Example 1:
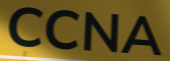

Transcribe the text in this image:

CCNA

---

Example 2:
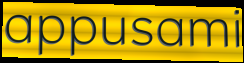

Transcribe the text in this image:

appusami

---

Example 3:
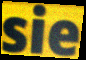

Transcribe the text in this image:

sie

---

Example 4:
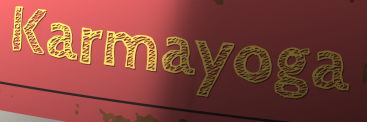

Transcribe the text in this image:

Karmayoga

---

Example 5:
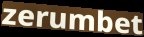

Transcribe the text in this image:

zerumbet